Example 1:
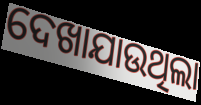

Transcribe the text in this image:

ଦେଖାଯାଉଥିଲା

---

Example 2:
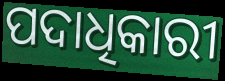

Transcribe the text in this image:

ପଦାଧିକାରୀ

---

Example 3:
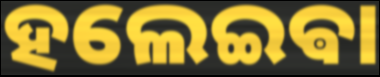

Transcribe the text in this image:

ହଲେଇଵା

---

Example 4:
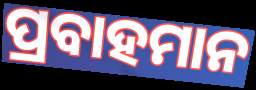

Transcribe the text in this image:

ପ୍ରବାହମାନ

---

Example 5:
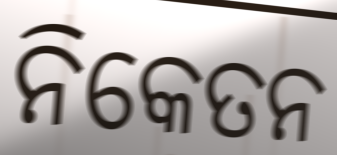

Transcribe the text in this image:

ନିକେତନ